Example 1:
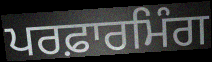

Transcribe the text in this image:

ਪਰਫ਼ਾਰਮਿੰਗ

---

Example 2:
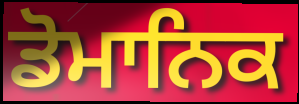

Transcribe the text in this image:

ਡੋਮਾਨਿਕ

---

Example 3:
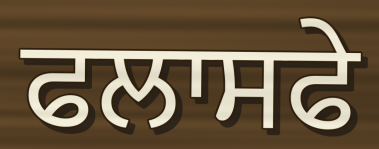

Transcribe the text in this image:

ਫਲਾਸਫੇ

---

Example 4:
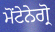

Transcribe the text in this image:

ਮੋਂਟੇਨੇਗ੍ਰੋ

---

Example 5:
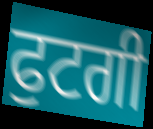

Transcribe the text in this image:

ਫੁਟਗੀ